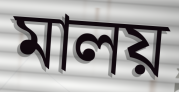
মালয়